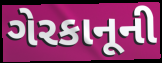
ગેરકાનૂની